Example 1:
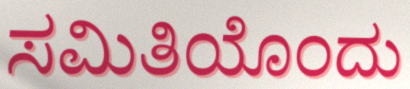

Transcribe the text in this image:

ಸಮಿತಿಯೊಂದು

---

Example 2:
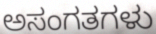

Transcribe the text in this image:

ಅಸಂಗತಗಳು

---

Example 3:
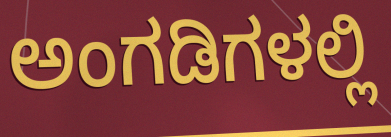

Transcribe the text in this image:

ಅಂಗಡಿಗಳಲ್ಲಿ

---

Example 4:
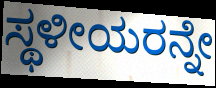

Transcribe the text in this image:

ಸ್ಥಳೀಯರನ್ನೇ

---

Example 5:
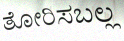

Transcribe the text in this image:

ತೋರಿಸಬಲ್ಲ